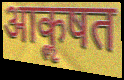
आकॢषत